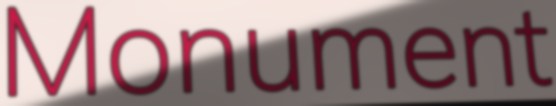
Monument